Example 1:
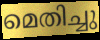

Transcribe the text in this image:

മെതിച്ചു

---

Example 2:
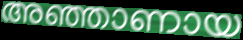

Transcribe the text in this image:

അഞ്ഞാണായ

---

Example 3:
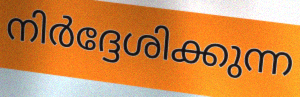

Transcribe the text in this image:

നിർദ്ദേശിക്കുന്ന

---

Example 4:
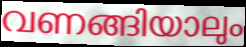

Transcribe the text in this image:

വണങ്ങിയാലും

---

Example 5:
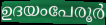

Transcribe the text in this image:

ഉദയംപേരൂർ